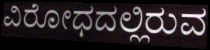
ವಿರೋಧದಲ್ಲಿರುವ